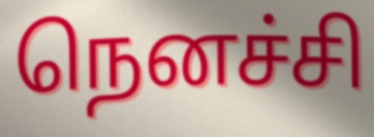
நெனச்சி